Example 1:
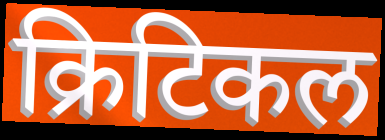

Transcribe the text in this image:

क्रिटिकल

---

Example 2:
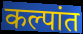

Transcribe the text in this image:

कल्पांत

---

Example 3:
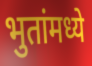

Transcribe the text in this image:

भुतांमध्ये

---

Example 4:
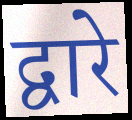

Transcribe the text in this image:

द्वारे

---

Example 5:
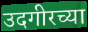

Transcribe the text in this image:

उदगीरच्या